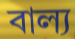
বাল্য